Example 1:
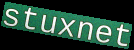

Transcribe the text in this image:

stuxnet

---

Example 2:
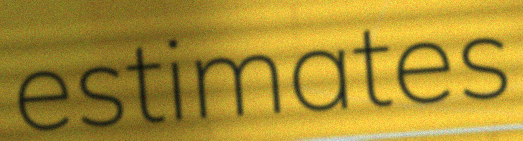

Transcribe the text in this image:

estimates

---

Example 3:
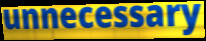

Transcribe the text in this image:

unnecessary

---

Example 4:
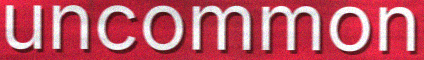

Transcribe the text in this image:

uncommon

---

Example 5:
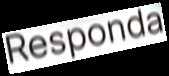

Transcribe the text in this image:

Responda